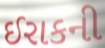
ઈરાકની